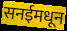
सनईमधून